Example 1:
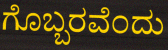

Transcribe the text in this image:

ಗೊಬ್ಬರವೆಂದು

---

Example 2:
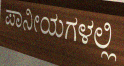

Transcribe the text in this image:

ಪಾನೀಯಗಳಲ್ಲಿ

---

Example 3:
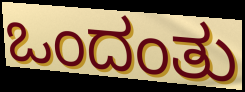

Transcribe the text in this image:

ಒಂದಂತು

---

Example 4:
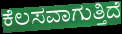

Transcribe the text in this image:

ಕೆಲಸವಾಗುತ್ತಿದೆ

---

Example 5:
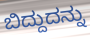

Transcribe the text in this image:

ಬಿದ್ದುದನ್ನು